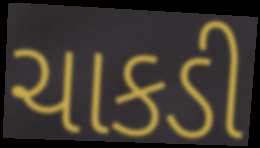
ચાકડી